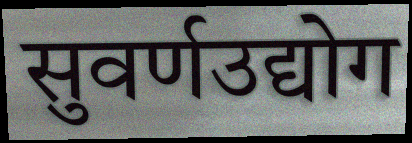
सुवर्णउद्योग